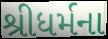
શ્રીધર્મના